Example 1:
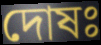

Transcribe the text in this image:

দোষঃ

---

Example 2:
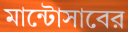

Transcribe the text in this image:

মান্টোসাবের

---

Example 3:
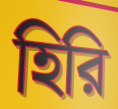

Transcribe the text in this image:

হিরি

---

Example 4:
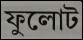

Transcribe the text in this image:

ফুলোট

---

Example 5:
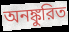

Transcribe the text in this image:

অনঙ্কুরিত